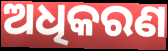
ଅଧିକରଣ